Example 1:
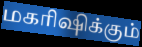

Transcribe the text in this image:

மகரிஷிக்கும்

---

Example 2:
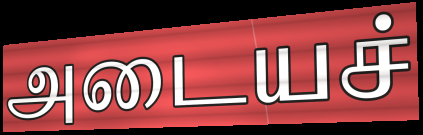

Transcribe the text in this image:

அடையச்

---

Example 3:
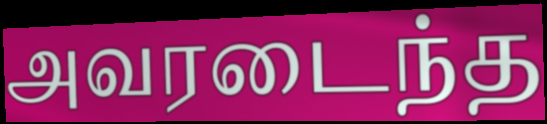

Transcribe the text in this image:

அவரடைந்த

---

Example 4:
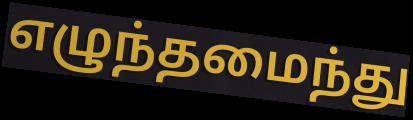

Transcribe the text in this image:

எழுந்தமைந்து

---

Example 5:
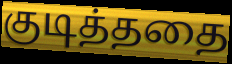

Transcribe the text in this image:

குடித்ததை